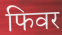
फिवर